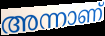
അന്നാണ്